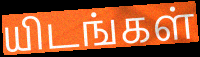
யிடங்கள்